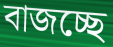
বাজচ্ছে